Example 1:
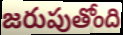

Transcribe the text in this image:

జరుపుతోంది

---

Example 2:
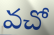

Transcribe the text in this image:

వచో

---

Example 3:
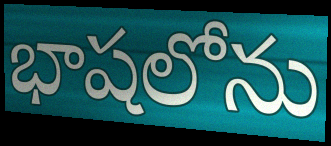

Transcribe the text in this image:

భాషలోను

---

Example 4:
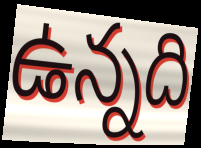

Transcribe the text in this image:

ఉన్నది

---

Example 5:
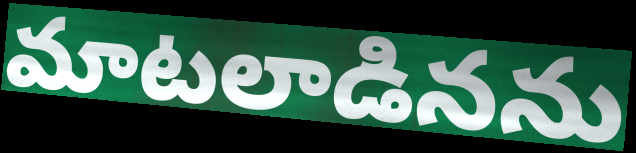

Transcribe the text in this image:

మాటలాడినను